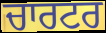
ਚਾਰਟਰ